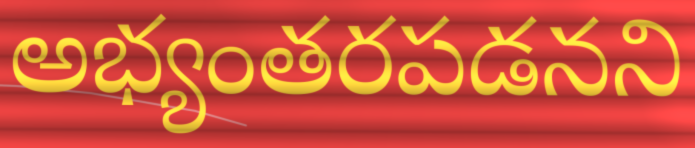
అభ్యంతరపడనని